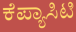
ಕೆಪ್ಯಾಸಿಟಿ